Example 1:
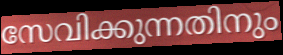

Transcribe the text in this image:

സേവിക്കുന്നതിനും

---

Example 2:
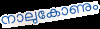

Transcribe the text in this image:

നാലുകോണും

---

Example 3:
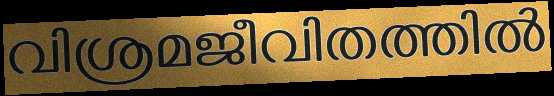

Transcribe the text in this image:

വിശ്രമജീവിതത്തിൽ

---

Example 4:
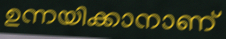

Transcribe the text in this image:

ഉന്നയിക്കാനാണ്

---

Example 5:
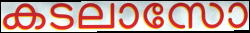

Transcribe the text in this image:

കടലാസോ